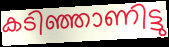
കടിഞ്ഞാണിട്ടു